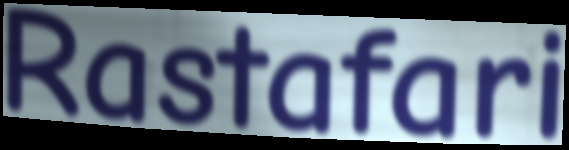
Rastafari